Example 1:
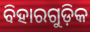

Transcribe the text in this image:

ବିହାରଗୁଡ଼ିକ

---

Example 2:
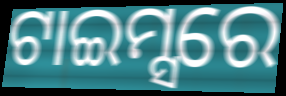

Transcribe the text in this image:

ଟାଇମ୍ସରେ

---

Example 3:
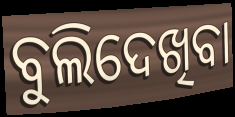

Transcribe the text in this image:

ବୁଲିଦେଖିବା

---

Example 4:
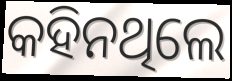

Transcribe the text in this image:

କହିନଥିଲେ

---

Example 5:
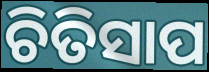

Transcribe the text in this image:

ଚିତିସାପ